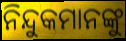
ନିନ୍ଦୁକମାନଙ୍କୁ